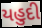
યહુદી